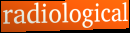
radiological